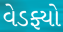
વેડફ્યો